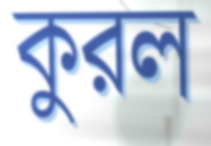
কুরল